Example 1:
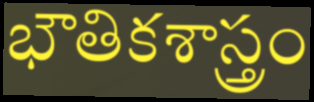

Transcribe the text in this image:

భౌతికశాస్త్రం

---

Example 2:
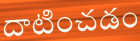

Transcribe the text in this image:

దాటించడం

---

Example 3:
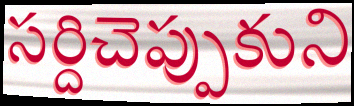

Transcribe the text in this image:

సర్దిచెప్పుకుని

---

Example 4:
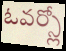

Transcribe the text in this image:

ఓవర్స్లో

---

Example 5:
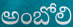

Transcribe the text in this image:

అంబోలి